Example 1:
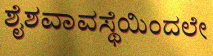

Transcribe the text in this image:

ಶೈಶವಾವಸ್ಥೆಯಿಂದಲೇ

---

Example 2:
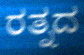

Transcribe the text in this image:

ರತ್ನದ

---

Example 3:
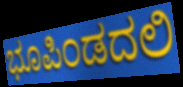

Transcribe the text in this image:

ಭೂಪಿಂಡದಲಿ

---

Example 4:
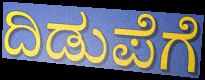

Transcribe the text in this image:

ದಿಡುಪೆಗೆ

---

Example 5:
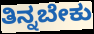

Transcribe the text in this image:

ತಿನ್ನಬೇಕು